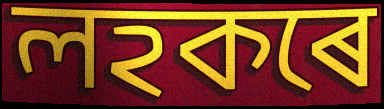
লহকৰে